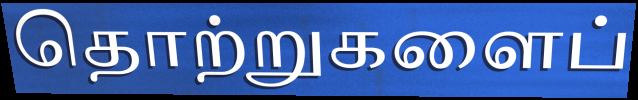
தொற்றுகளைப்